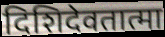
दिशिदेवतात्मा